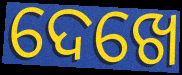
ଦେଖେ